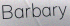
Barbary